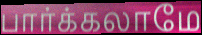
பார்க்கலாமே